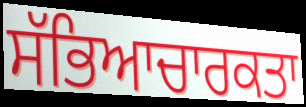
ਸੱਭਿਆਚਾਰਕਤਾ